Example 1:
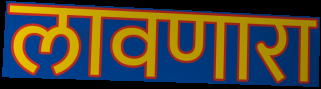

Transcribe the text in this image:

लावणारा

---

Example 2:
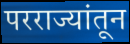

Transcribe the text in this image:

परराज्यांतून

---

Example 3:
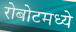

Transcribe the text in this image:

रोबोटमध्ये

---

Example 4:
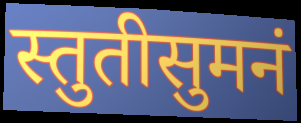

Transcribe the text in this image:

स्तुतीसुमनं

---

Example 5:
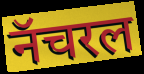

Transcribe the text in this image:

नॅचरल